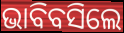
ଭାବିବସିଲେ